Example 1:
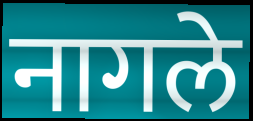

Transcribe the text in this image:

नागले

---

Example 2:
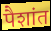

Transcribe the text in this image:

पैशांत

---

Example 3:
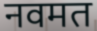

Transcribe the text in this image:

नवमत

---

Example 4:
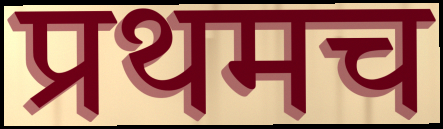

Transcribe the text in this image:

प्रथमच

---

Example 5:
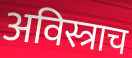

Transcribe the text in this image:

अविस्त्राच